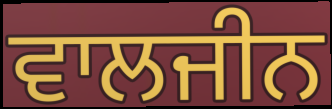
ਵਾਲਜੀਨ